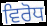
ਵਿਰੋਧ